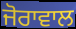
ਜੋਰਾਵਾਲ